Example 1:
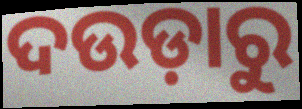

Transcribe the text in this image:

ଦଉଡ଼ାରୁ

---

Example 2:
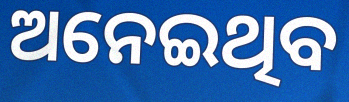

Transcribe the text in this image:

ଅନେଇଥିବ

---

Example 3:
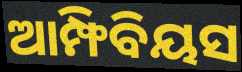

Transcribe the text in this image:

ଆମ୍ଫିବିୟସ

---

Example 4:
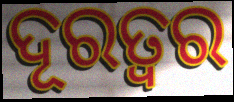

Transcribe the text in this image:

ଦୂରତ୍ଵର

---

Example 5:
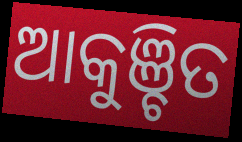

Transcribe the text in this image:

ଆକୁଞ୍ଚିତ